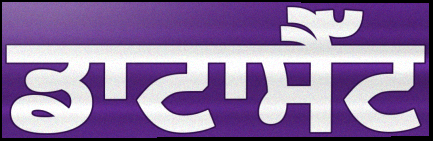
ਡਾਟਾਸੈੱਟ